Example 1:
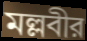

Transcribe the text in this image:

মল্লবীর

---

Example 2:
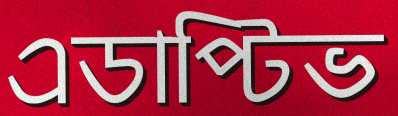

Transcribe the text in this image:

এডাপ্টিভ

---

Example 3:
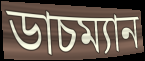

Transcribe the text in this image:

ডাচম্যান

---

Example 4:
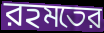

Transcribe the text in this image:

রহমতের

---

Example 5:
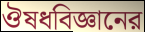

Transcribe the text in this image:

ঔষধবিজ্ঞানের